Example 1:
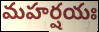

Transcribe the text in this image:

మహర్షయః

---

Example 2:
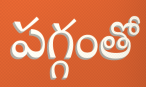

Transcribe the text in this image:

పగ్గంతో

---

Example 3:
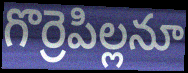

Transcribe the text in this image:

గొర్రెపిల్లనూ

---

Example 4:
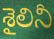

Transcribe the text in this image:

శైలినీ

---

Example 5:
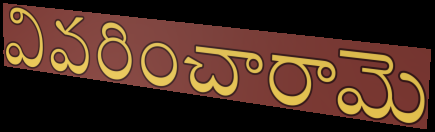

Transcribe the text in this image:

వివరించారామె